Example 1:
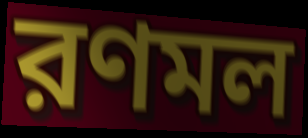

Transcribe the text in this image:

রণমল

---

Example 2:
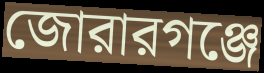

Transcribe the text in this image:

জোরারগঞ্জে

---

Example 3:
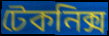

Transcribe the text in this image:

টেকনিক্স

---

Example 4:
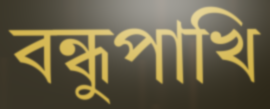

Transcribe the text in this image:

বন্ধুপাখি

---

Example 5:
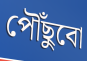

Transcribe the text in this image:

পৌঁছুবো